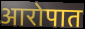
आरोपात